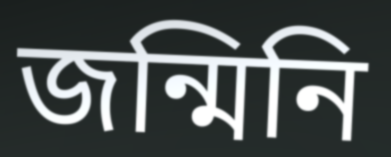
জন্মিনি